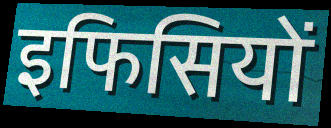
इफिसियों